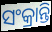
ସଂକ୍ରାନ୍ତି